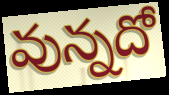
వున్నదో